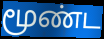
மூண்ட